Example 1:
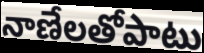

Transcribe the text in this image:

నాణేలతోపాటు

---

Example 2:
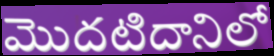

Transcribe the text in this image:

మొదటిదానిలో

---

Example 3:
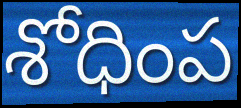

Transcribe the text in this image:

శోధింప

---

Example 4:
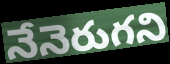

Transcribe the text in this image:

నేనెరుగని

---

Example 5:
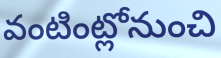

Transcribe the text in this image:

వంటింట్లోనుంచి